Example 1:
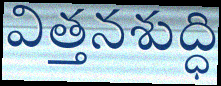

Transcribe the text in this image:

విత్తనశుద్ధి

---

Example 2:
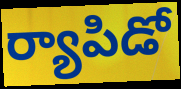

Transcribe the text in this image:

ర్యాపిడో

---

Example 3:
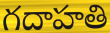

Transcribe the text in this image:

గదాహతి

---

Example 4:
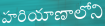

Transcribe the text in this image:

హరియాణాలోని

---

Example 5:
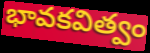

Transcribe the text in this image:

భావకవిత్వం